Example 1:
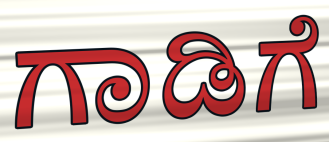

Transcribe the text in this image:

ಗಾಡಿಗೆ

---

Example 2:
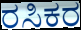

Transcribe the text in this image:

ರಸಿಕರ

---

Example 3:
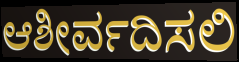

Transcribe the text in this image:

ಆಶೀರ್ವದಿಸಲಿ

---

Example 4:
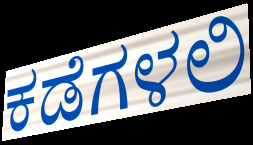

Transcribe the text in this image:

ಕಡೆಗಳಲಿ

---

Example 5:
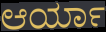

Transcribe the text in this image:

ಆರ್ಯಾ